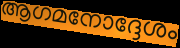
ആഗമനോദ്ദേശം